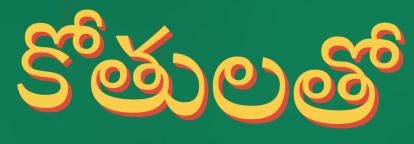
కోతులతో